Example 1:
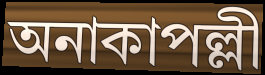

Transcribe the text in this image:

অনাকাপল্লী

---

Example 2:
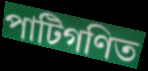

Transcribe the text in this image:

পাটিগণিত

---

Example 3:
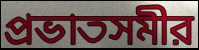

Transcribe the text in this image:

প্রভাতসমীর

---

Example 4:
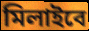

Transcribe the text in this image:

মিলাইবে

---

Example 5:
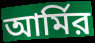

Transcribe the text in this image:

আর্মির